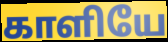
காளியே